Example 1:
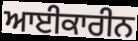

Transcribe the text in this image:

ਆਈਕਾਰੀਨ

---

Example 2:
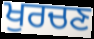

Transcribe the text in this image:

ਖੁਰਚਣ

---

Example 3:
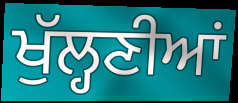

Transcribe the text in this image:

ਖੁੱਲ੍ਹਣੀਆਂ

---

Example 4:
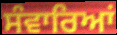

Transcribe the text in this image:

ਸੰਵਾਰਿਆਂ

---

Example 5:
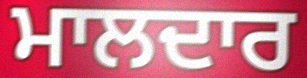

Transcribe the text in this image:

ਮਾਲਦਾਰ